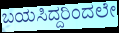
ಬಯಸಿದ್ದರಿಂದಲೇ